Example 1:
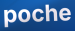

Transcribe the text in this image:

poche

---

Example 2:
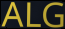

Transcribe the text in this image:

ALG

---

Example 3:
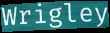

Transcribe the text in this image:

Wrigley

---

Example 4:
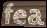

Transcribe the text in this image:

fea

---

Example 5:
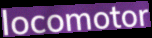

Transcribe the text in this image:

locomotor